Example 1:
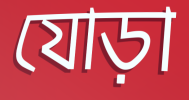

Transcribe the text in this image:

যোড়া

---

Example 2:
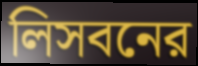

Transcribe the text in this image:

লিসবনের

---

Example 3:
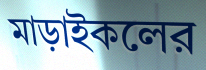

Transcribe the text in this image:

মাড়াইকলের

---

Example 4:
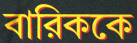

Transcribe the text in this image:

বারিককে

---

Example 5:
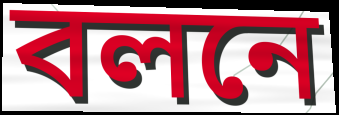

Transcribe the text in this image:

বলনে